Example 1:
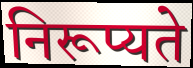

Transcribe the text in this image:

निरूप्यते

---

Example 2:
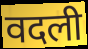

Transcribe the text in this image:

वदली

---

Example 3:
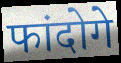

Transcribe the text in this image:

फांदोगे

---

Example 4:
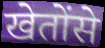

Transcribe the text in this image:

खेतोंसे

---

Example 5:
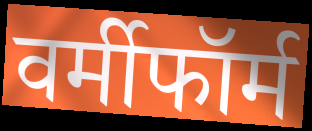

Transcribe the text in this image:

वर्मीफॉर्म